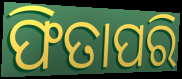
ଫିତାପରି